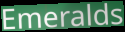
Emeralds